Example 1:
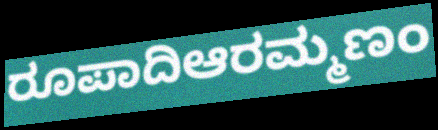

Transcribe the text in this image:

ರೂಪಾದಿಆರಮ್ಮಣಂ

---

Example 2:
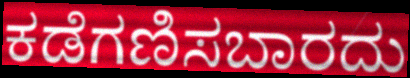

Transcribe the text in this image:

ಕಡೆಗಣಿಸಬಾರದು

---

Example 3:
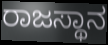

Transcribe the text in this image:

ರಾಜಸ್ಥಾನ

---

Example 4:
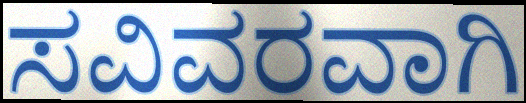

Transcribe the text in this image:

ಸವಿವರವಾಗಿ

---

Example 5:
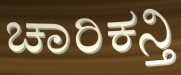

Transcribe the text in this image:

ಚಾರಿಕನ್ತಿ